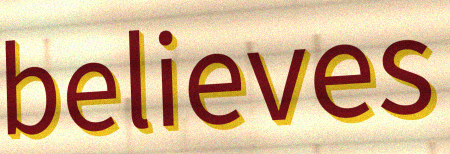
believes